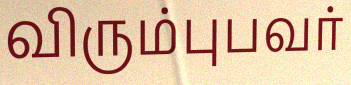
விரும்புபவர்